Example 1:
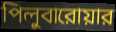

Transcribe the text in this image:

পিলুবারোয়ার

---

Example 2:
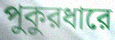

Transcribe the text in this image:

পুকুরধারে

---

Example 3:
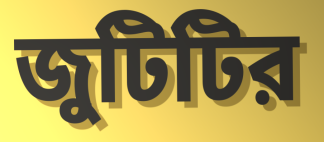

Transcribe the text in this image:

জুটিটির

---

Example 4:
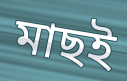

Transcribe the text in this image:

মাছই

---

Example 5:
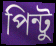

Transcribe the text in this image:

পিন্টু